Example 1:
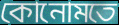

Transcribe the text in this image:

কোনোমতে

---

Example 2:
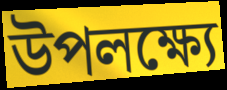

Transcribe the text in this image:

উপলক্ষ্যে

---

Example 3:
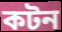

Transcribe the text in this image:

কটন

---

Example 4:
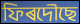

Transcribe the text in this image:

ফিৰদৌছে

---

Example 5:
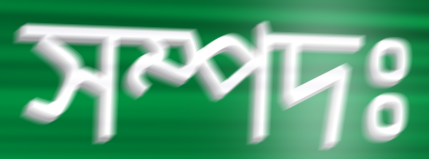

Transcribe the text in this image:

সম্পদঃ